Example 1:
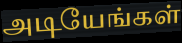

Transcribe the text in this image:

அடியேங்கள்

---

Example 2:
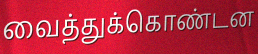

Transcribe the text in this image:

வைத்துக்கொண்டன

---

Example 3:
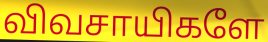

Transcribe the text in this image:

விவசாயிகளே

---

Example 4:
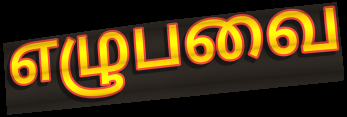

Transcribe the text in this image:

எழுபவை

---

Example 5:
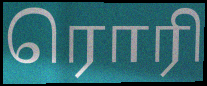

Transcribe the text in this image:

ரொரி